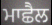
ਮਾਛੈਲ